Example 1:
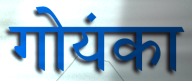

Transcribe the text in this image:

गोयंका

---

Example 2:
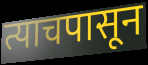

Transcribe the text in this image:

त्याचपासून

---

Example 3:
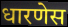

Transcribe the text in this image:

धारणेस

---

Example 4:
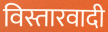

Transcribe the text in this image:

विस्तारवादी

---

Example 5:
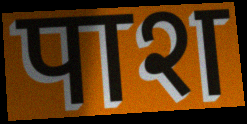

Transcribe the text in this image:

पाश